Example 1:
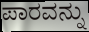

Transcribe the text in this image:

ಪಾರವನ್ನು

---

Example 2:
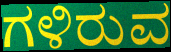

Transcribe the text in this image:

ಗಳಿರುವ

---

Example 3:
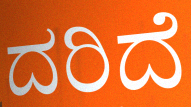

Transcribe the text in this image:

ದರಿದೆ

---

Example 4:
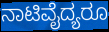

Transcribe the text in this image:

ನಾಟಿವೈದ್ಯರೂ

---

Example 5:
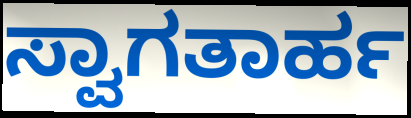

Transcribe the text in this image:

ಸ್ವಾಗತಾರ್ಹ